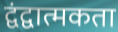
द्वंद्वात्मकता